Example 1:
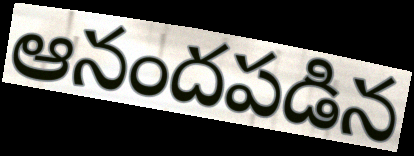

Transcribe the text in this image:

ఆనందపడిన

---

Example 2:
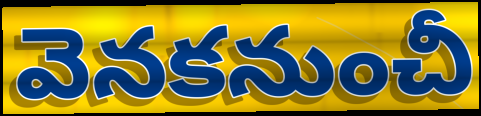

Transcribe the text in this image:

వెనకనుంచీ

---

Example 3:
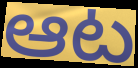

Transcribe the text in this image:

ఆట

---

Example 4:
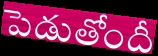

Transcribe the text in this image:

పెడుతోందీ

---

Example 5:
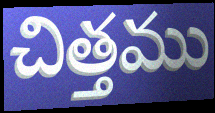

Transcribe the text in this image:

చిత్తము